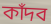
কাঁদব